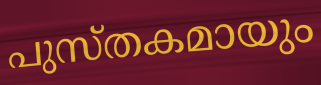
പുസ്തകമായും